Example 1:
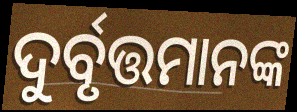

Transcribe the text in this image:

ଦୁର୍ବୃତ୍ତମାନଙ୍କ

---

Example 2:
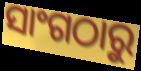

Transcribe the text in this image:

ସାଂଗଠାରୁ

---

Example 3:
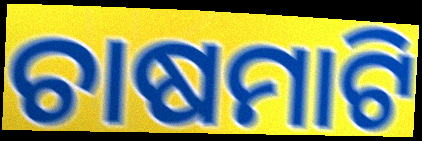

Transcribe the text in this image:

ଚାଷମାଟି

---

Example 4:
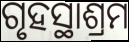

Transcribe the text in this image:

ଗୃହସ୍ଥାଶ୍ରମ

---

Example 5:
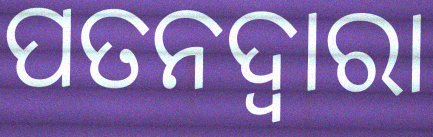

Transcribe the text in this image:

ପତନଦ୍ଵାରା